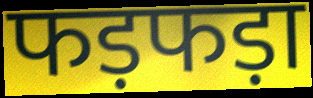
फड़फड़ा